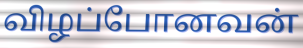
விழப்போனவன்